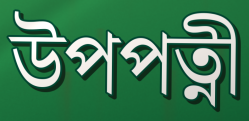
উপপত্নী